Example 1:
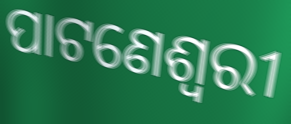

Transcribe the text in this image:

ପାଟଣେଶ୍ୱରୀ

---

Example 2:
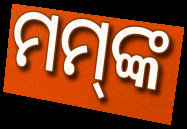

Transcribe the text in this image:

ମମ୍‌ଙ୍କ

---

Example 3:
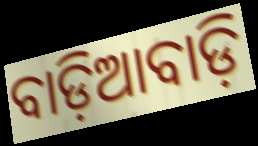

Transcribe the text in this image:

ବାଡ଼ିଆବାଡ଼ି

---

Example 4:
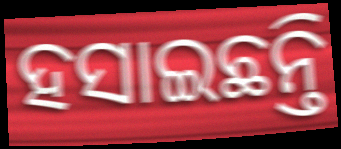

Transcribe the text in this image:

ହସାଇଛନ୍ତି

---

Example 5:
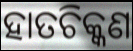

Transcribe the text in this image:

ହାତଚିକ୍କଣ